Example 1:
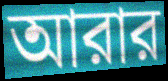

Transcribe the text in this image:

আরার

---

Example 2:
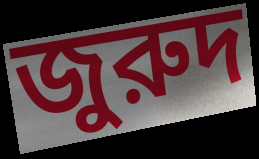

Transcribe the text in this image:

জুরুদ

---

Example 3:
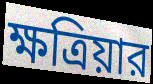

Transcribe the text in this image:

ক্ষত্রিয়ার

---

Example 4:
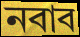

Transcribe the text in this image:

নবাব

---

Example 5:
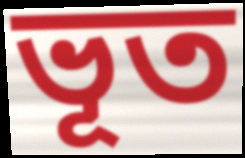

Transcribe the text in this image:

ভূত